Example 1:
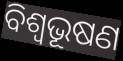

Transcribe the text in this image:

ବିଶ୍ବଭୂଷଣ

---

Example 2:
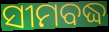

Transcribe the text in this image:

ସୀମବଦ୍ଧ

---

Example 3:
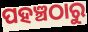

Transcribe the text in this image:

ପହଞ୍ଚଠାରୁ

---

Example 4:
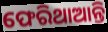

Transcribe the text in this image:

ଫେରିଥାଆନ୍ତି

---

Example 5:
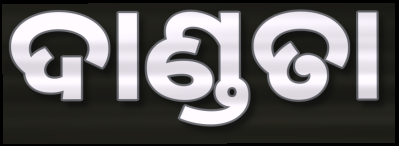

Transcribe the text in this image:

ଦାଣ୍ଡତା